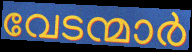
വേടന്മാർ